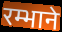
रम्भाने